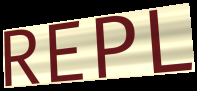
REPL